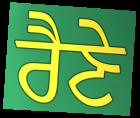
ਰੈਣੇ